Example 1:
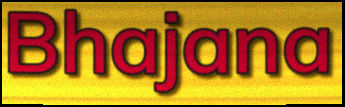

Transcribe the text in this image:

Bhajana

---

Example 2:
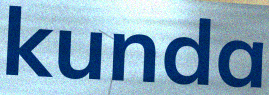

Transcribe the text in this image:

kunda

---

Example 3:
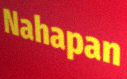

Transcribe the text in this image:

Nahapan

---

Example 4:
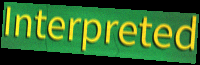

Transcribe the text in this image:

Interpreted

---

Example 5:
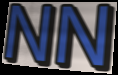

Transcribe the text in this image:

NN